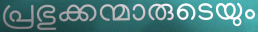
പ്രഭുക്കന്മാരുടെയും